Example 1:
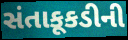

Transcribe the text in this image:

સંતાકૂકડીની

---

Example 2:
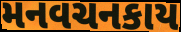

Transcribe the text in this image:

મનવચનકાય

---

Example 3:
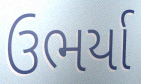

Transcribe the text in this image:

ઉભર્યા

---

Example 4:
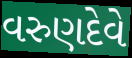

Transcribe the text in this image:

વરુણદેવે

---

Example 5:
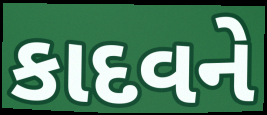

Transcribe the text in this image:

કાદવને